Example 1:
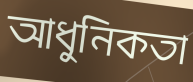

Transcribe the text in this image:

আধুনিকতা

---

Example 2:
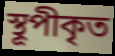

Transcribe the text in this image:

স্থূপীকৃত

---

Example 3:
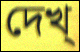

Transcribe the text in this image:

দেখ্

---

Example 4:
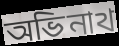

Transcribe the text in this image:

অভিনাথ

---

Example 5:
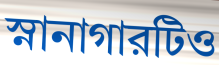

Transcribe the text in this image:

স্নানাগারটিও